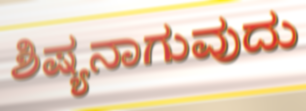
ಶಿಷ್ಯನಾಗುವುದು